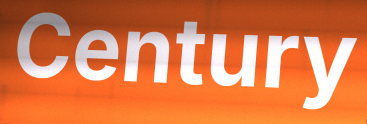
Century